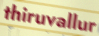
thiruvallur